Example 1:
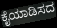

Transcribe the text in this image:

ಕೈಯಾಡಿಸದ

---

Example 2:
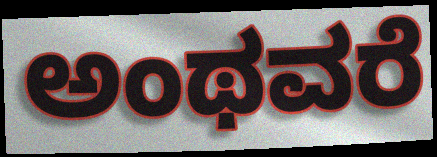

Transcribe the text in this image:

ಅಂಥವರೆ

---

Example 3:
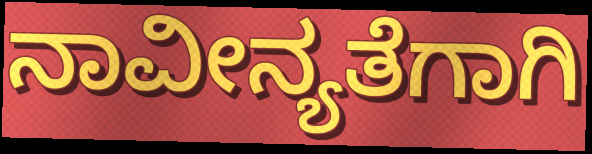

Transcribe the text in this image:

ನಾವೀನ್ಯತೆಗಾಗಿ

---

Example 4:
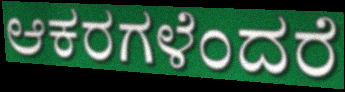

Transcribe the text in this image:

ಆಕರಗಳೆಂದರೆ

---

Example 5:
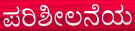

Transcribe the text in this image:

ಪರಿಶೀಲನೆಯ